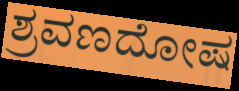
ಶ್ರವಣದೋಷ